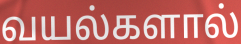
வயல்களால்